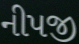
નીપજી